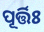
ପୂର୍ତ୍ତିଃ